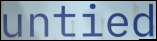
untied